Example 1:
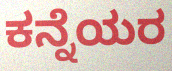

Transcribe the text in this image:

ಕನ್ನೆಯರ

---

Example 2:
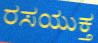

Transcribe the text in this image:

ರಸಯುಕ್ತ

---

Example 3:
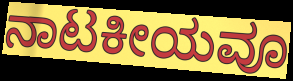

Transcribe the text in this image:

ನಾಟಕೀಯವೂ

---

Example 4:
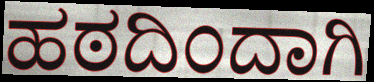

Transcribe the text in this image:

ಹಠದಿಂದಾಗಿ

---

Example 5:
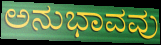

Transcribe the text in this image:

ಅನುಭಾವವು